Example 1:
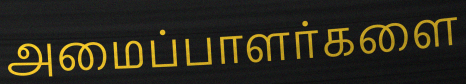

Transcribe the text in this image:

அமைப்பாளர்களை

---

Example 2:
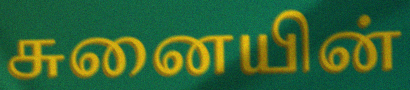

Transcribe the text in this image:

சுனையின்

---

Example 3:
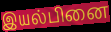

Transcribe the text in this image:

இயல்பினை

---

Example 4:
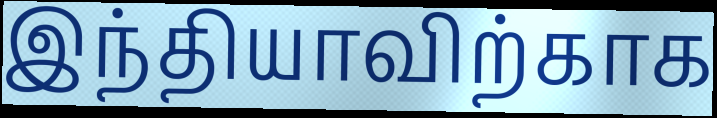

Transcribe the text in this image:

இந்தியாவிற்காக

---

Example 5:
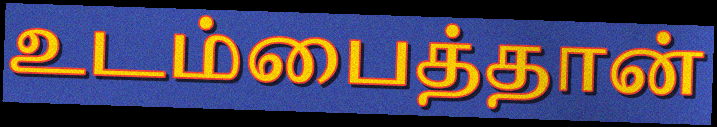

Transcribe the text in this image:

உடம்பைத்தான்